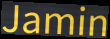
Jamin